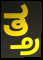
ತ್ತ್ರ